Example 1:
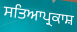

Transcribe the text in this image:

ਸਤਿਆਪ੍ਰਕਾਸ਼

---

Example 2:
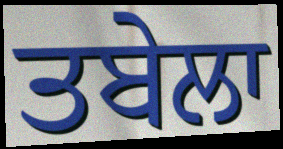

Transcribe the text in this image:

ਤਬੇਲਾ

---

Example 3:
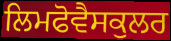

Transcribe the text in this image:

ਲਿਮਫੋਵੈਸਕੁਲਰ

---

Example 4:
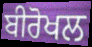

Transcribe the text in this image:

ਬੀਰੋਖਲ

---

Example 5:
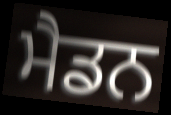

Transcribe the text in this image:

ਮੈਡਨ